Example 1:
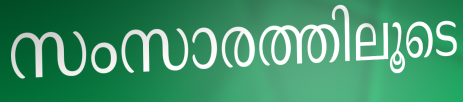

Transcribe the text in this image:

സംസാരത്തിലൂടെ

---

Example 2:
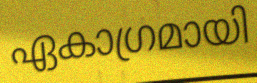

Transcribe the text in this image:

ഏകാഗ്രമായി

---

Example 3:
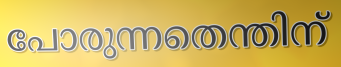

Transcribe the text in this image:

പോരുന്നതെന്തിന്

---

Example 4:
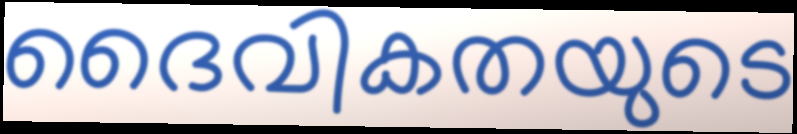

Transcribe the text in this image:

ദൈവികതയുടെ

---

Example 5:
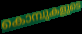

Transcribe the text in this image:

കൊമ്പുകളുടെ